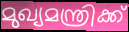
മുഖ്യമന്ത്രിക്ക്